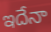
ఇదేనా